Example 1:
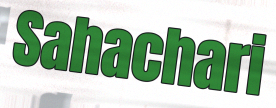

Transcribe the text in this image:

Sahachari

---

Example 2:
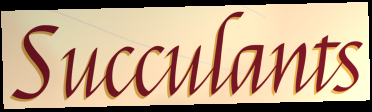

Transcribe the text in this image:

Succulants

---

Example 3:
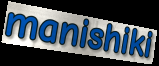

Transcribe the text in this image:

manishiki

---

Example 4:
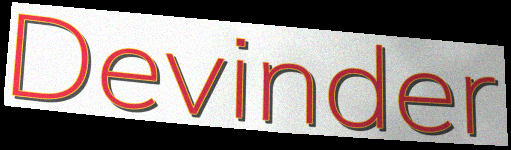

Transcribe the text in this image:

Devinder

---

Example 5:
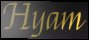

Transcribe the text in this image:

Hyam